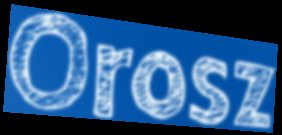
Orosz